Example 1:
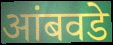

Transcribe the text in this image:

आंबवडे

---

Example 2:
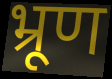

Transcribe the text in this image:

भ्रूण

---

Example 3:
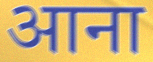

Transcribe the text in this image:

आना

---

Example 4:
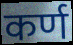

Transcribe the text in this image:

कर्ण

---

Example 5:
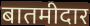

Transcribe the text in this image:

बातमीदार